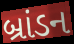
બ્રાંડન